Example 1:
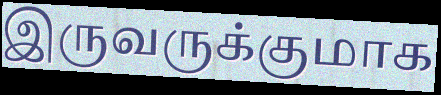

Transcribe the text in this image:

இருவருக்குமாக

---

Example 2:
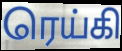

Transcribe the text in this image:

ரெய்கி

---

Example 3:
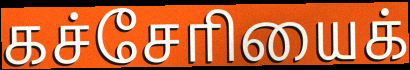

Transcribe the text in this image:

கச்சேரியைக்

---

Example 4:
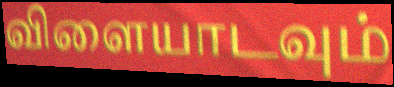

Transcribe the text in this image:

விளையாடவும்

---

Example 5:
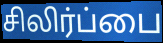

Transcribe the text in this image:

சிலிர்ப்பை